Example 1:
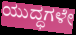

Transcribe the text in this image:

ಯುದ್ಧಗಳೇ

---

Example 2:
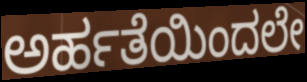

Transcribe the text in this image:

ಅರ್ಹತೆಯಿಂದಲೇ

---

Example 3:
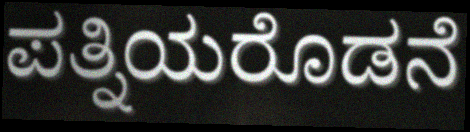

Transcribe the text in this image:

ಪತ್ನಿಯರೊಡನೆ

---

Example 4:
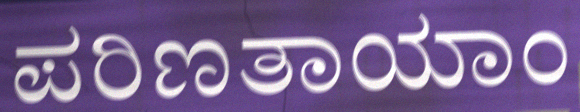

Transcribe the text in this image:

ಪರಿಣತಾಯಾಂ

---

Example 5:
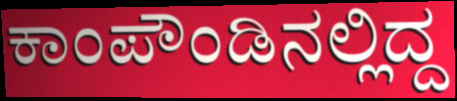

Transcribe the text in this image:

ಕಾಂಪೌಂಡಿನಲ್ಲಿದ್ದ